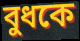
বুধকে